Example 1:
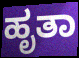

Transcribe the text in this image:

ಹೃತಾ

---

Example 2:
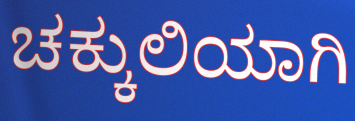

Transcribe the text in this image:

ಚಕ್ಕುಲಿಯಾಗಿ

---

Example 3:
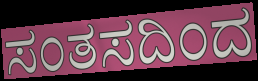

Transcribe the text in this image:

ಸಂತಸದಿಂದ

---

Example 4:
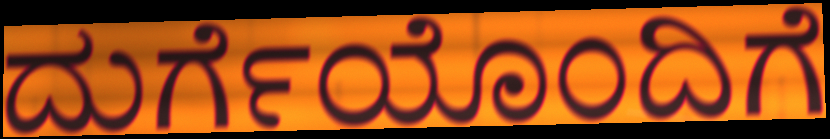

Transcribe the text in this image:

ದುರ್ಗೆಯೊಂದಿಗೆ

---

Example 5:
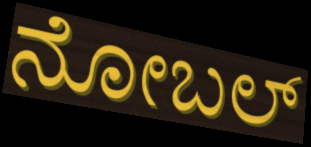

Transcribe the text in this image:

ನೋಬಲ್